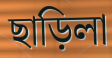
ছাড়িলা